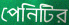
পেনিটির